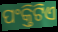
ପଂକ୍ତିଟିଏ